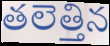
తలెత్తిన